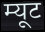
म्यूट